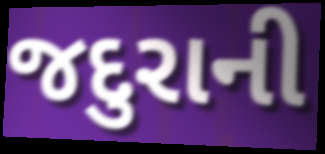
જદુરાની